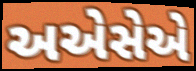
અએસેએ